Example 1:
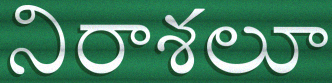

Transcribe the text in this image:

నిరాశలూ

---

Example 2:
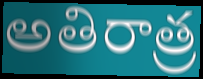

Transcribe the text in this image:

అతిరాత్ర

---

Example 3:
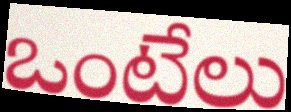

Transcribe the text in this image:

ఒంటేలు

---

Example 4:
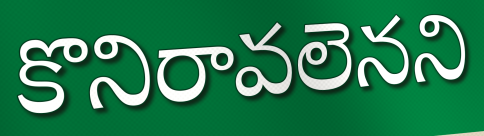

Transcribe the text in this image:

కొనిరావలెనని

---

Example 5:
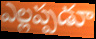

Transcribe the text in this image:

ఎల్లప్పడూ